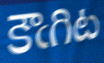
కౌఁగిట